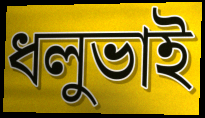
ধলুভাই